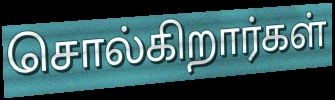
சொல்கிறார்கள்